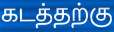
கடத்தற்கு